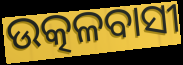
ଉତ୍କଳବାସୀ